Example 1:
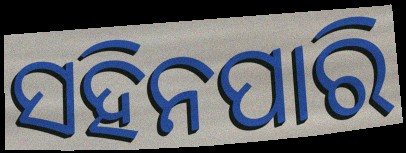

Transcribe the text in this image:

ସହିନପାରି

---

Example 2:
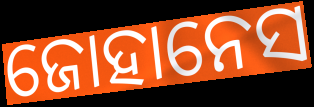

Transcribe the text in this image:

ଜୋହାନେସ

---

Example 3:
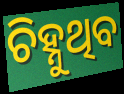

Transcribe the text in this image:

ଚିହ୍ନୁଥିବ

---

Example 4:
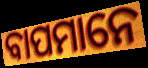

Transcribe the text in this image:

ବାପମାନେ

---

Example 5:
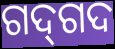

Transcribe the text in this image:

ଗଦ୍‌ଗଦ